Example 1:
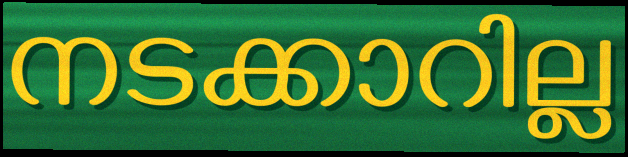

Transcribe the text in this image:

നടക്കാറില്ല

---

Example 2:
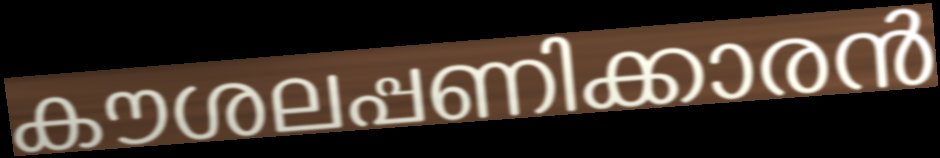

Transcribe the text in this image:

കൗശലപ്പണിക്കാരൻ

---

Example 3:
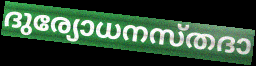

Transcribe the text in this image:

ദുര്യോധനസ്തദാ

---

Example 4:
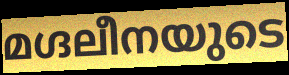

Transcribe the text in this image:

മഗ്ദലീനയുടെ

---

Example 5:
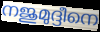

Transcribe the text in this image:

നജുമുദ്ദീനെ